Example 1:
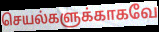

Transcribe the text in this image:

செயல்களுக்காகவே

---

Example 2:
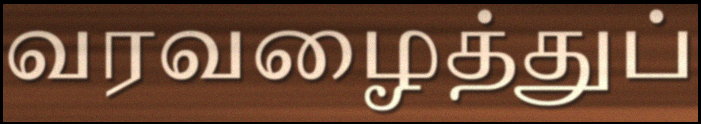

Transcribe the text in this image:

வரவழைத்துப்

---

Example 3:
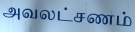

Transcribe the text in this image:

அவலட்சணம்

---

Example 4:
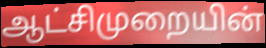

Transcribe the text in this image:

ஆட்சிமுறையின்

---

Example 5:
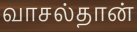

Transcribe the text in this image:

வாசல்தான்